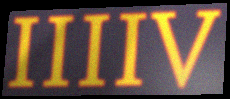
IIIIV